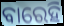
ବାରେହି